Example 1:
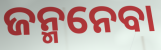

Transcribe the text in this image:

ଜନ୍ମନେବା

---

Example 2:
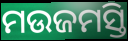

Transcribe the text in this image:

ମଉଜମସ୍ତି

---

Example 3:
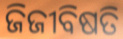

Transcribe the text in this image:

ଜିଜୀବିଷତି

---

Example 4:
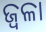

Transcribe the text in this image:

ଜ୍ଵଳା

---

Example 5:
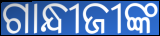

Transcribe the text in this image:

ଗାନ୍ଧୀଜୀଙ୍କ